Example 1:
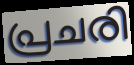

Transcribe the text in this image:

പ്രചരി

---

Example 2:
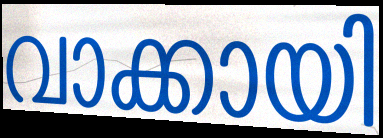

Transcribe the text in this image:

വാക്കായി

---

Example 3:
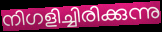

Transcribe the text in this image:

നിഗളിച്ചിരിക്കുന്നു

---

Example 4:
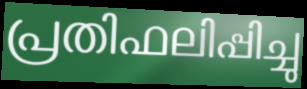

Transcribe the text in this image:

പ്രതിഫലിപ്പിച്ചു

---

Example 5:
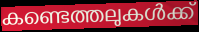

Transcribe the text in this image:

കണ്ടെത്തലുകൾക്ക്